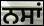
ਨਸਾਂ